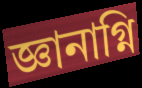
জ্ঞানাগ্নি